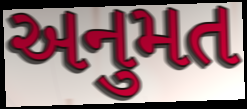
અનુમત